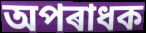
অপৰাধক